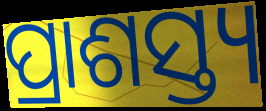
ପ୍ରାଶସ୍ତ୍ୟ